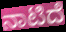
ನಾಟಿದೆ